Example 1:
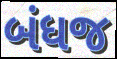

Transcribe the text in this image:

બંધજ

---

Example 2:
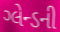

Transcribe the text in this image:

ગ્લેન્ડની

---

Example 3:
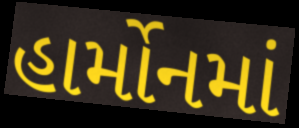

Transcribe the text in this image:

હાર્મોનમાં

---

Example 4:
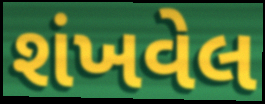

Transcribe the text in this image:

શંખવેલ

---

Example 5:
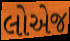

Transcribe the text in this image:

લોએજ